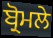
ਬ੍ਰੋਮਲੇ